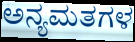
ಅನ್ಯಮತಗಳ